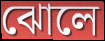
ঝোলে